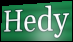
Hedy